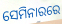
ସେମିନାରରେ